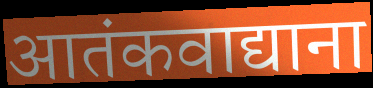
आतंकवाद्याना